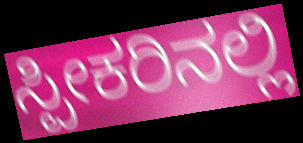
ಸ್ಪೀಕರಿನಲ್ಲಿ